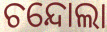
ଚନ୍ଦୋଲା